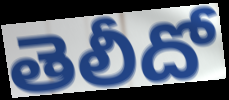
తెలీదో